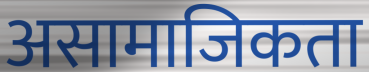
असामाजिकता